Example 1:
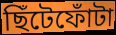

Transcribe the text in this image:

ছিঁটেফোঁটা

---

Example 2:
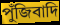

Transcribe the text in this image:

পুঁজিবাদি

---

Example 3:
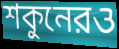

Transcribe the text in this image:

শকুনেরও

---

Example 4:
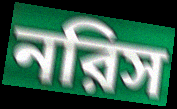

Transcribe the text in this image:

নরিস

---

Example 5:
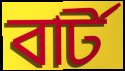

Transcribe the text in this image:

বার্ট